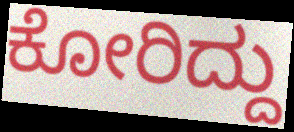
ಕೋರಿದ್ದು